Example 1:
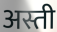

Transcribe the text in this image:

अस्ती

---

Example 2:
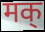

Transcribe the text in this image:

मक्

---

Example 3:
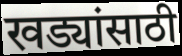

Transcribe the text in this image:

खड्यांसाठी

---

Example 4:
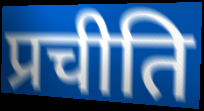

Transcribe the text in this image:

प्रचीति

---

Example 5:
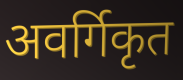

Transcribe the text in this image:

अवर्गिकृत